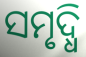
ସମୃଦ୍ଧି